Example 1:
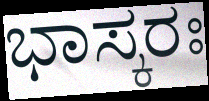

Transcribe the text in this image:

ಭಾಸ್ಕರಃ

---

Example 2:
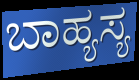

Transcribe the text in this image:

ಬಾಹ್ಯಸ್ಯ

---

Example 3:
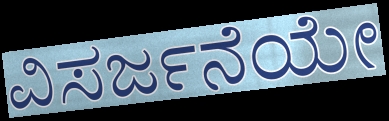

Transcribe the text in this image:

ವಿಸರ್ಜನೆಯೇ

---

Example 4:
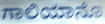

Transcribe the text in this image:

ಗಾಲಿಯಾನೊ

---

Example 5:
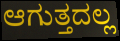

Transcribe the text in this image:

ಆಗುತ್ತದಲ್ಲ